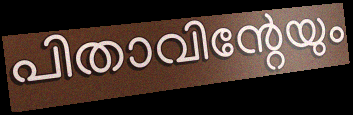
പിതാവിന്റേയും